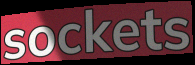
sockets